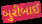
બુરીબાઈ